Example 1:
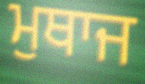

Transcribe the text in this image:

ਮੁਥਾਜ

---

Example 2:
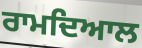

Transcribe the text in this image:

ਰਾਮਦਿਆਲ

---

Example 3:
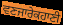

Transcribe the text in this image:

ਵਣਜਾਰੇਕਹਾਣੀ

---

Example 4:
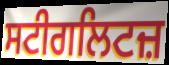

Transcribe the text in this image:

ਸਟੀਗਲਿਟਜ਼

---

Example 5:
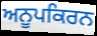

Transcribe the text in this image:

ਅਨੂਪਕਿਰਨ